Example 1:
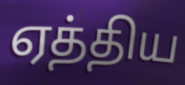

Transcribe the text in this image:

ஏத்திய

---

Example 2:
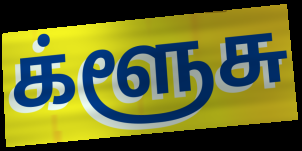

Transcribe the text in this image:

க்ளூசு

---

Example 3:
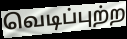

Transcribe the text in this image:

வெடிப்புற்ற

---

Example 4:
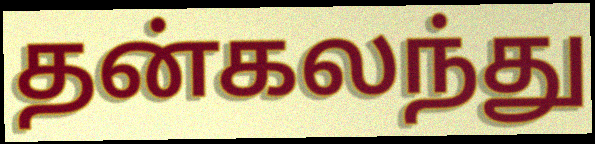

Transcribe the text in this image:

தன்கலந்து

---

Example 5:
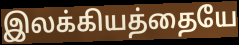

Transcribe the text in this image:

இலக்கியத்தையே